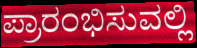
ಪ್ರಾರಂಭಿಸುವಲ್ಲಿ